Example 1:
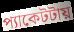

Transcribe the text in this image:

প্যাকেটটায়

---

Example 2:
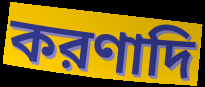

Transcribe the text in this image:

করণাদি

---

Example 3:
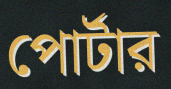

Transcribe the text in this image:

পোর্টার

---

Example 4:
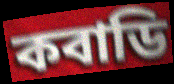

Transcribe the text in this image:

কবাডি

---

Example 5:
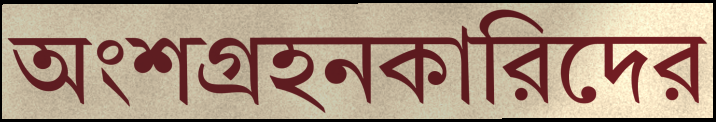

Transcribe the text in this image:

অংশগ্রহনকারিদের